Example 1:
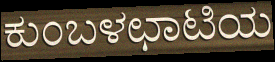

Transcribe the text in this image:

ಕುಂಬಳಛಾಟಿಯ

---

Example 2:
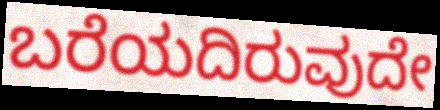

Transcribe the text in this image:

ಬರೆಯದಿರುವುದೇ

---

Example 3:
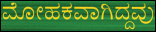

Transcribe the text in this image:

ಮೋಹಕವಾಗಿದ್ದವು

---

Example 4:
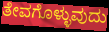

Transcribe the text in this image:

ತೇವಗೊಳ್ಳುವುದು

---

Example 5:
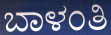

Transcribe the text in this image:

ಬಾಳಂತಿ